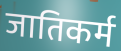
जातिकर्म